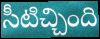
సీటిచ్చింది